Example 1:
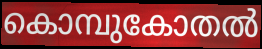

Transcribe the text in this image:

കൊമ്പുകോതൽ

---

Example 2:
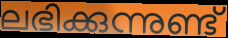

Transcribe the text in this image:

ലഭിക്കുന്നുണ്ട്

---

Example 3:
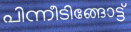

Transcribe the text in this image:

പിന്നീടിങ്ങോട്ട്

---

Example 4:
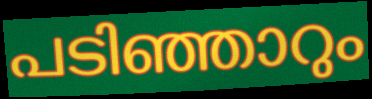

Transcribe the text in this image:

പടിഞ്ഞാറും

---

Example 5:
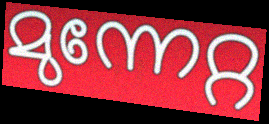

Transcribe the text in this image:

മുന്നേറ്റ